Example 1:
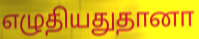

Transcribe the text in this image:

எழுதியதுதானா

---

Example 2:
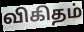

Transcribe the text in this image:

விகிதம்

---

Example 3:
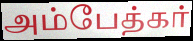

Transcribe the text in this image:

அம்பேத்கர்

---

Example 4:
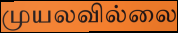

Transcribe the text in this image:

முயலவில்லை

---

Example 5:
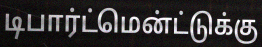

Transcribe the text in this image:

டிபார்ட்மென்ட்டுக்கு